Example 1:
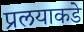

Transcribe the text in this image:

प्रलयाकडे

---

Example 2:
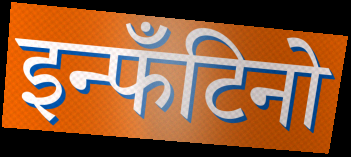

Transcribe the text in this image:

इन्फँटिनो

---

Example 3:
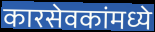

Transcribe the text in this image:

कारसेवकांमध्ये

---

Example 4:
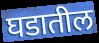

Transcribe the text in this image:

घडातील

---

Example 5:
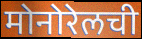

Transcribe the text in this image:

मोनोरेलची